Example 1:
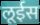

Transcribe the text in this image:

लूईस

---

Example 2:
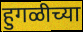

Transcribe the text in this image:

हुगळीच्या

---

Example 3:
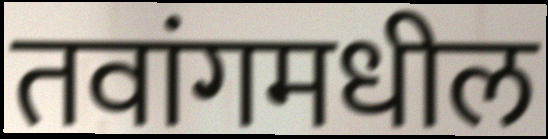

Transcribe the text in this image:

तवांगमधील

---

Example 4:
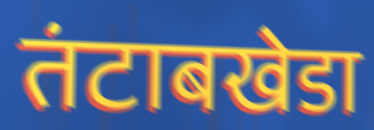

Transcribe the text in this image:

तंटाबखेडा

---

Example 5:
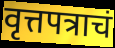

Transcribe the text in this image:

वृत्तपत्राचं